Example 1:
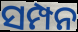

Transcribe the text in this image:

ସମ୍ପନ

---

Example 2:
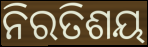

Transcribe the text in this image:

ନିରତିଶୟ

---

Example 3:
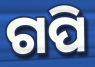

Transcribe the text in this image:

ଗପି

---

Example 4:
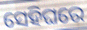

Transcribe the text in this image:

ସେହିଘରେ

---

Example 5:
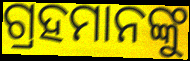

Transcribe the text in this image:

ଗ୍ରହମାନଙ୍କୁ